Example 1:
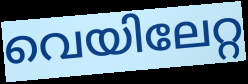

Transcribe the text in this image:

വെയിലേറ്റ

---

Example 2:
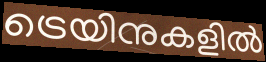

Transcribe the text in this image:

ട്രെയിനുകളിൽ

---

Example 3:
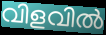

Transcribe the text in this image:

വിളവിൽ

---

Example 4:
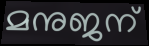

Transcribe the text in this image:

മനുജന്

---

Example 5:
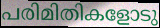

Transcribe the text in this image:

പരിമിതികളോടു